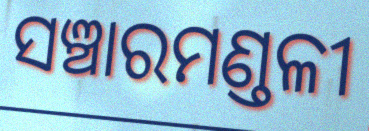
ସଞ୍ଚାରମଣ୍ଡଳୀ